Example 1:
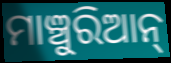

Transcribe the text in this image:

ମାଞ୍ଚୁରିଆନ୍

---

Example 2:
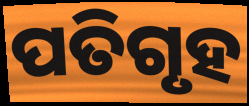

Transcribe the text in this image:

ପତିଗୃହ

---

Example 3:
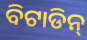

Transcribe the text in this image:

ବିଟାଡିନ୍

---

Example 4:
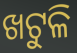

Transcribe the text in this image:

ଖଟୁଳି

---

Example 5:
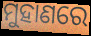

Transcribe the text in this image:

ମୁହାଣରେ